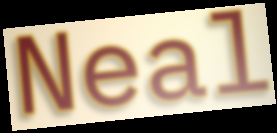
Neal